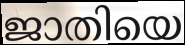
ജാതിയെ